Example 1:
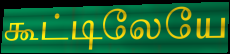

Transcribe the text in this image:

கூட்டிலேயே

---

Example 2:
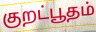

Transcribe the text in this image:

குறட்பூதம்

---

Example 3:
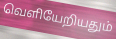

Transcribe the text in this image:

வெளியேறியதும்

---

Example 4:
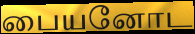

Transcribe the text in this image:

பையனோட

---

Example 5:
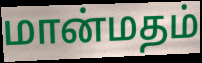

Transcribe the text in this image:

மான்மதம்